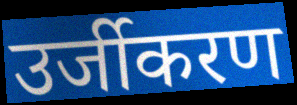
उर्जीकरण